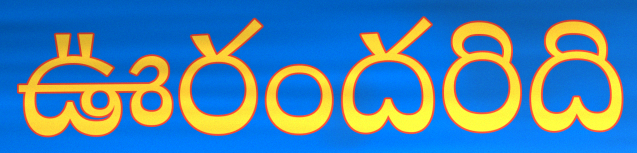
ఊరందరిది